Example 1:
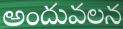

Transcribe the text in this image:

అందువలన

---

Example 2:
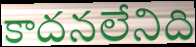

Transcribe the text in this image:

కాదనలేనిది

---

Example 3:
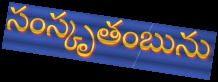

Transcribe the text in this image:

సంస్కృతంబును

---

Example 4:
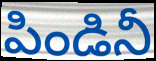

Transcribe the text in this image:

పిండినీ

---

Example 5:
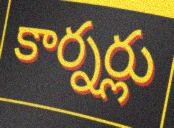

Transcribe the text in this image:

కార్నర్లు